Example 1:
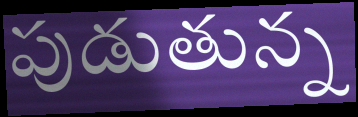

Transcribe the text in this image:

పుడుతున్న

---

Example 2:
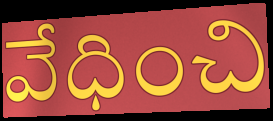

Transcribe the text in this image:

వేధించి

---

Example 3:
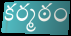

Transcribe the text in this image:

కర్మఠం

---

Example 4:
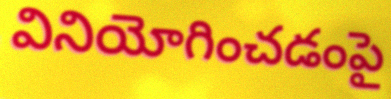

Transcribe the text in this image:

వినియోగించడంపై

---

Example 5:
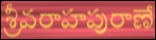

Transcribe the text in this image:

శ్రీవరాహపురాణే